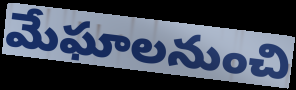
మేఘాలనుంచి